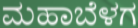
ಮಹಾಬೆಳಗ